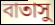
বাতাসু